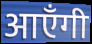
आएँगी